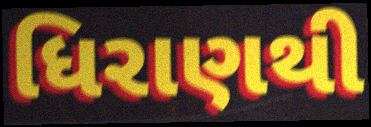
ધિરાણથી